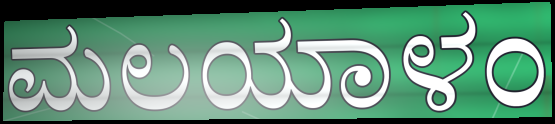
ಮಲಯಾಳಂ